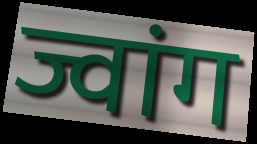
ज्वांग